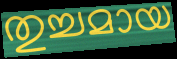
തുച്ചമായ